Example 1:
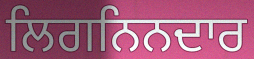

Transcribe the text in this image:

ਲਿਗਨਿਨਦਾਰ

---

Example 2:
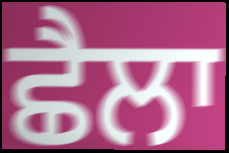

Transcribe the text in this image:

ਛੈਲਾ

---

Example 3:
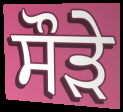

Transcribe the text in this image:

ਸੌੜੇ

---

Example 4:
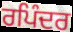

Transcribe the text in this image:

ਰਪਿੰਦਰ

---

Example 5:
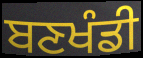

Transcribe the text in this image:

ਬਣਖੰਡੀ